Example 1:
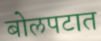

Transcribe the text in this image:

बोलपटात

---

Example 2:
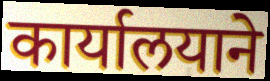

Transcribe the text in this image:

कार्यालयाने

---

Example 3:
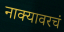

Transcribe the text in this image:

नाक्यावरचं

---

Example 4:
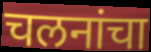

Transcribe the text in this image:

चलनांचा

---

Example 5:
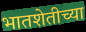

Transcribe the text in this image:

भातशेतीच्या